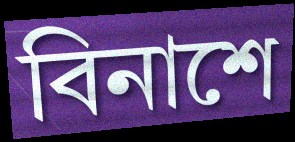
বিনাশে